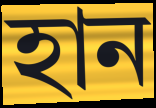
হান